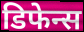
डिफेन्स